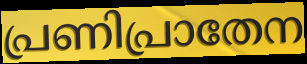
പ്രണിപ്രാതേന